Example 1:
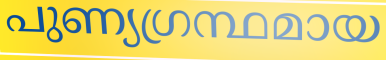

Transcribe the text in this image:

പുണ്യഗ്രന്ഥമായ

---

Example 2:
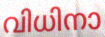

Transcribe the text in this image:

വിധിനാ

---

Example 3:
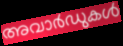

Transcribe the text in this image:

അവാർഡുകൾ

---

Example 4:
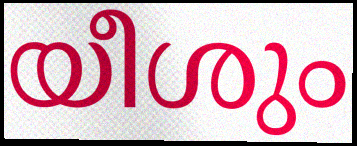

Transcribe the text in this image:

യീശും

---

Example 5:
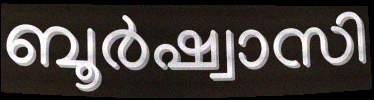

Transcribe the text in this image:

ബൂർഷ്വാസി